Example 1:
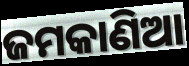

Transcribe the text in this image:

ଜମକାଣିଆ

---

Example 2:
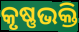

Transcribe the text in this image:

କୃଷ୍ଣଭକ୍ତି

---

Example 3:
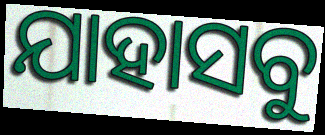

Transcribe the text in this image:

ଯାହାସବୁ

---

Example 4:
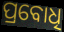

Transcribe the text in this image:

ପ୍ରବୋଧି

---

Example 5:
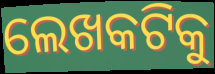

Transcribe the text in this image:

ଲେଖକଟିକୁ